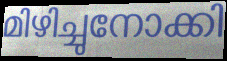
മിഴിച്ചുനോക്കി